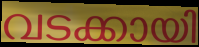
വടക്കായി